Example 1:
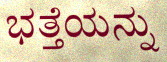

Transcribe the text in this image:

ಭತ್ತೆಯನ್ನು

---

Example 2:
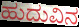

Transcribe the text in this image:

ಹುದುವಿನ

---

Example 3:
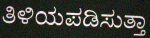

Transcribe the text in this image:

ತಿಳಿಯಪಡಿಸುತ್ತಾ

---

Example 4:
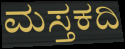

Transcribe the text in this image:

ಮಸ್ತಕದಿ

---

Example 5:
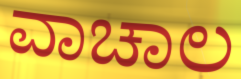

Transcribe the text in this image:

ವಾಚಾಲ